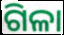
ଗିଳା